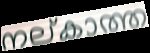
നല്കാത്ത